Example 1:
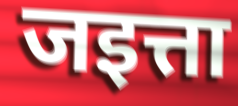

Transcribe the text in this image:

जइत्ता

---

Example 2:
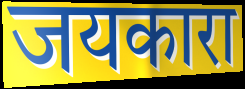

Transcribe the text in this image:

जयकारा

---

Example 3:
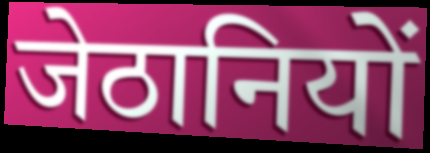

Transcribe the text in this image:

जेठानियों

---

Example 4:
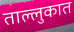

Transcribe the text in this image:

ताल्लुकात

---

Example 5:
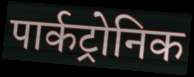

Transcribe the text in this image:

पार्कट्रोनिक